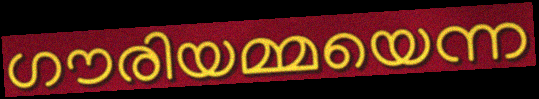
ഗൗരിയമ്മയെന്ന